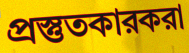
প্রস্তুতকারকরা